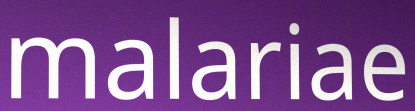
malariae